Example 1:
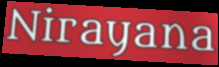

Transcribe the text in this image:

Nirayana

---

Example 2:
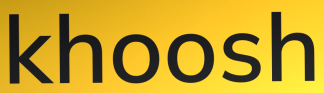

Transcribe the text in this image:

khoosh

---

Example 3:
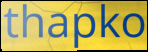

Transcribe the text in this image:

thapko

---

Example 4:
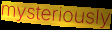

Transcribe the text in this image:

mysteriously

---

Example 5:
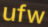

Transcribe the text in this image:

ufw